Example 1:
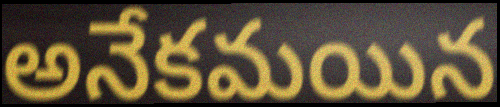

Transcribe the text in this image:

అనేకమయిన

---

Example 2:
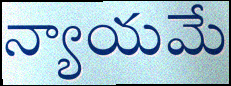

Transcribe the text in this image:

న్యాయమే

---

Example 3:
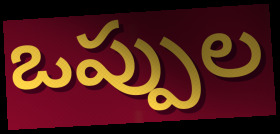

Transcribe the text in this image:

ఒప్పుల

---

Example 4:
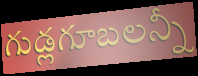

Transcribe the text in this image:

గుడ్లగూబలన్నీ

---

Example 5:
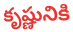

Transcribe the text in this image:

కృష్ణునికి